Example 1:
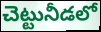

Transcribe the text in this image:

చెట్టునీడలో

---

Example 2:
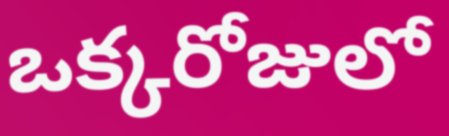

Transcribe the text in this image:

ఒక్కరోజులో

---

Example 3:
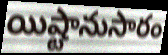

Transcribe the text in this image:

యిష్టానుసారం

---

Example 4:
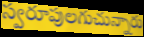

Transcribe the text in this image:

స్వరూపులగుచున్నారు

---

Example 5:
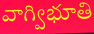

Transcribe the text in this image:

వాగ్విభూతి